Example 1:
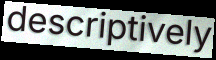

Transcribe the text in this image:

descriptively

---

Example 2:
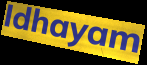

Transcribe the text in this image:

Idhayam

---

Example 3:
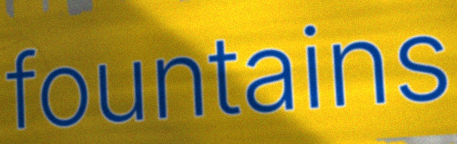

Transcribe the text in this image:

fountains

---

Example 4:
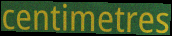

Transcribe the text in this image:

centimetres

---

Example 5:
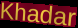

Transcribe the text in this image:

Khadar